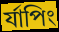
র্যাপিং